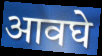
आवघे